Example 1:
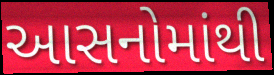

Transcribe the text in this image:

આસનોમાંથી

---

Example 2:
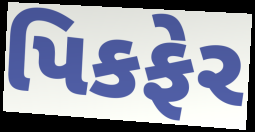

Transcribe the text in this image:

પિકફેર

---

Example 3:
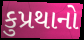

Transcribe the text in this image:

કુપ્રથાનો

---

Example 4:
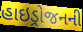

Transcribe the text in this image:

હાઇડ્રોજનની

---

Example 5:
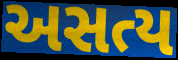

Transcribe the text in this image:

અસત્ય